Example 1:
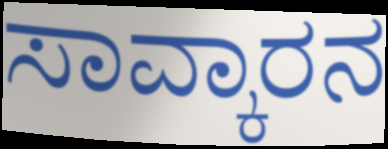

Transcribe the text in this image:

ಸಾವ್ಕಾರನ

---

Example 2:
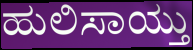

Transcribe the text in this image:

ಹುಲಿಸಾಯ್ತು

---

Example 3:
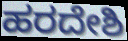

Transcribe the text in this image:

ಹರದೇಶಿ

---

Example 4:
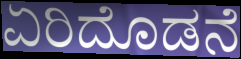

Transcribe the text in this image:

ಏರಿದೊಡನೆ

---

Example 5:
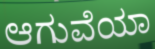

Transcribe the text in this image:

ಆಗುವೆಯಾ